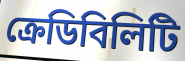
ক্রেডিবিলিটি